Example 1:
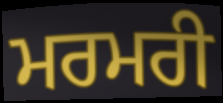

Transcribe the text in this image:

ਮਰਮਰੀ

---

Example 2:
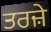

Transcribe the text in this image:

ਤਰਜ਼ੇ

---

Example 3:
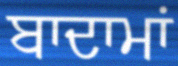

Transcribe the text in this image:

ਬਾਦਾਮਾਂ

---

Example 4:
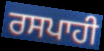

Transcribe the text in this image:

ਰਸਪਾਹੀ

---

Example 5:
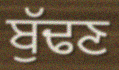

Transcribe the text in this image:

ਬੁੱਢਣ